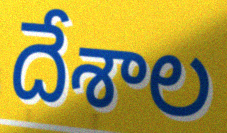
దేశాల